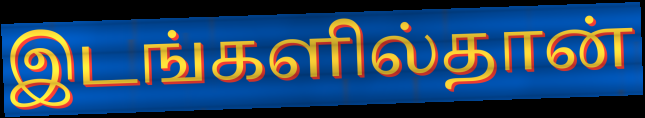
இடங்களில்தான்